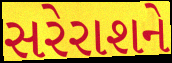
સરેરાશને